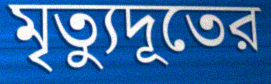
মৃত্যুদূতের